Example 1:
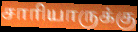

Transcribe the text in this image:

சாரியாருக்கு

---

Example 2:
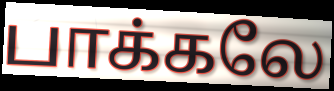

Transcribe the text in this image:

பாக்கலே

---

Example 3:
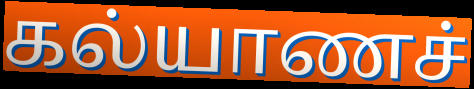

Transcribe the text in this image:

கல்யாணச்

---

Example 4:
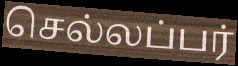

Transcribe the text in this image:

செல்லப்பர்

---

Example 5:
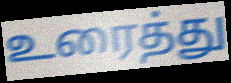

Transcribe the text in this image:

உரைத்து